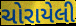
ચોરાયેલી